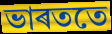
ভাৰততে